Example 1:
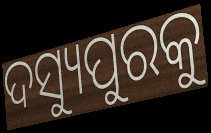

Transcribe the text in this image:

ଦସ୍ୟୁପୁରକୁ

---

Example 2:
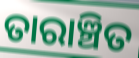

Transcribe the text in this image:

ତାରାଞ୍ଚିତ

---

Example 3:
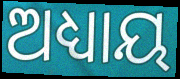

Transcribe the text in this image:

ଅଧ୍ୟାୟ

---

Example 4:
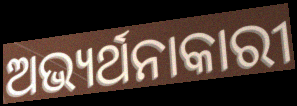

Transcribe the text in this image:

ଅଭ୍ୟର୍ଥନାକାରୀ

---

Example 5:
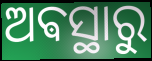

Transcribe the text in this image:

ଅଵସ୍ଥାରୁ